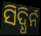
ସିଦ୍ଧିର୍ନ